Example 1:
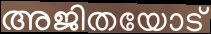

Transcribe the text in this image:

അജിതയോട്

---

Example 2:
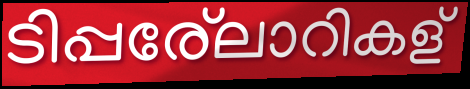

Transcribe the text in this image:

ടിപ്പര്ലോറികള്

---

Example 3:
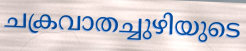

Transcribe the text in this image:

ചക്രവാതച്ചുഴിയുടെ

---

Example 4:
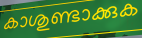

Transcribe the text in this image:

കാശുണ്ടാക്കുക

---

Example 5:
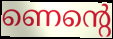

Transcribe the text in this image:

ണെന്റെ